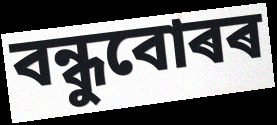
বন্ধুবোৰৰ